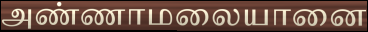
அண்ணாமலையானை